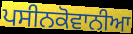
ਪਸੀਨਕੋਵਾਨੀਆ